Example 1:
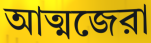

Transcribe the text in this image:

আত্মজেরা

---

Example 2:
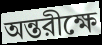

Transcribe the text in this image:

অন্তরীক্ষে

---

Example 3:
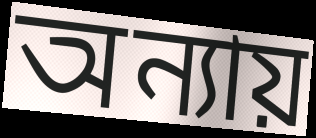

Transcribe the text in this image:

অন্যায়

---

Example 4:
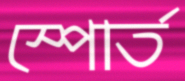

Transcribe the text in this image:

স্পোর্ত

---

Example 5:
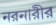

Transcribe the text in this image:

নরনারীর